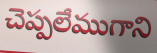
చెప్పలేముగాని